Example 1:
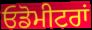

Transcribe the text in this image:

ਓਡੋਮੀਟਰਾਂ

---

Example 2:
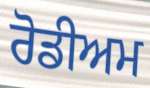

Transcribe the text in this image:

ਰੋਡੀਅਮ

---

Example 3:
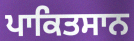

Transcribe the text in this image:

ਪਾਕਿਤਸਾਨ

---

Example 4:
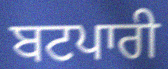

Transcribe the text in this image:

ਬਟਪਾਰੀ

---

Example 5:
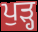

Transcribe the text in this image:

ਪੁੜ੍ਹ